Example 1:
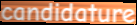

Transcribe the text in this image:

candidature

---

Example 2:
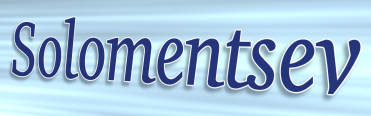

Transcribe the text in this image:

Solomentsev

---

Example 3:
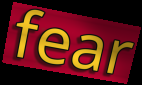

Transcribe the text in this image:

fear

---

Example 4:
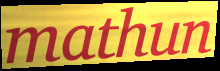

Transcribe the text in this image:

mathun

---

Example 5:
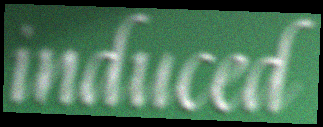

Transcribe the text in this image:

induced